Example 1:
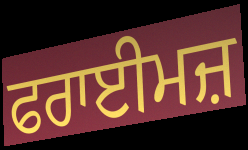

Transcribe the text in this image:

ਫਰਾਈਮਜ਼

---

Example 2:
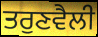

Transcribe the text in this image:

ਤਰੁਣਵੈਲੀ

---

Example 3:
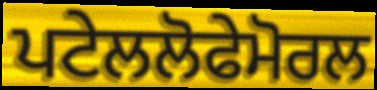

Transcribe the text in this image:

ਪਟੇਲਲੋਫੇਮੋਰਲ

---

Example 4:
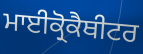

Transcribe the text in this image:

ਮਾਈਕ੍ਰੋਕੈਥੀਟਰ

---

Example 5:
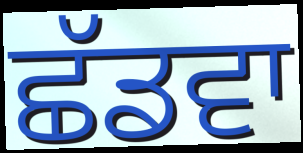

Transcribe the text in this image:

ਛੱਡਵਾ